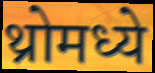
थ्रोमध्ये